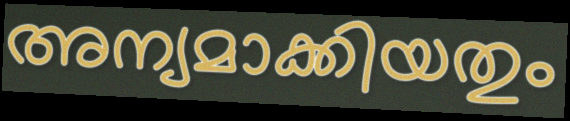
അന്യമാക്കിയതും